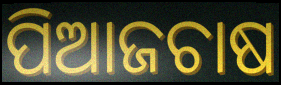
ପିଆଜଚାଷ